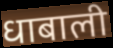
धाबाली